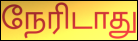
நேரிடாது